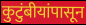
कुटुंबीयांपासून